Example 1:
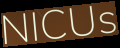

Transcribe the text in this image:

NICUs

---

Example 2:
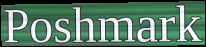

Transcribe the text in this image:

Poshmark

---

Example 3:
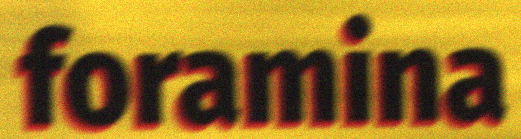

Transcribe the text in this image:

foramina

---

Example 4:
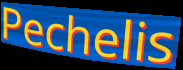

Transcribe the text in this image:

Pechelis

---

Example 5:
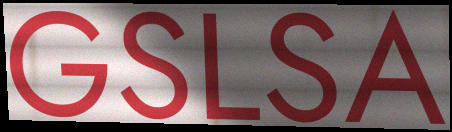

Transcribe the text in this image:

GSLSA